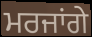
ਮਰਜਾਂਗੇ